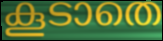
കൂടാതെ